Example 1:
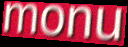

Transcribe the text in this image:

monu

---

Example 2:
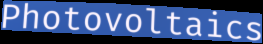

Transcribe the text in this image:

Photovoltaics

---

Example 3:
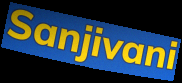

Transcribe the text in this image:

Sanjivani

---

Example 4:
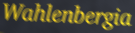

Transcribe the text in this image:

Wahlenbergia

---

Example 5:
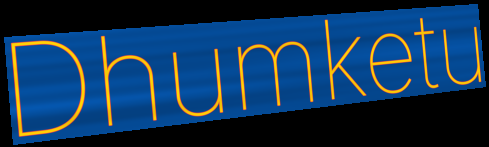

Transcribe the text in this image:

Dhumketu